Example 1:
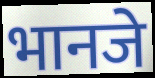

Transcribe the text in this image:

भानजे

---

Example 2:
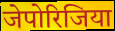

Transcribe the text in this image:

जेपोरिजिया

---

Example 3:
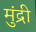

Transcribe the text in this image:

मुंद्री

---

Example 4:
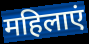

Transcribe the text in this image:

महिलाएं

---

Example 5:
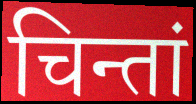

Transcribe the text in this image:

चिन्तां